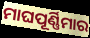
ମାଘପୂର୍ଣ୍ଣିମାର